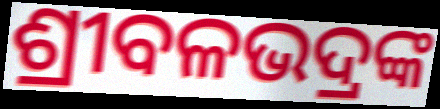
ଶ୍ରୀବଳଭଦ୍ରଙ୍କ